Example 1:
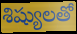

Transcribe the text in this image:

శిష్యులతో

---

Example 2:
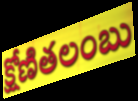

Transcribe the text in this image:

క్షోణితలంబు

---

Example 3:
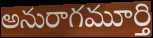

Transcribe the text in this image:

అనురాగమూర్తి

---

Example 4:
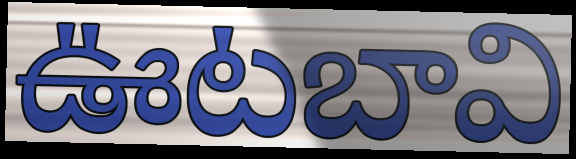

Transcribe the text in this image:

ఊటబావి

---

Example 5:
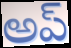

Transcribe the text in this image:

అప్